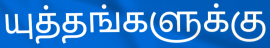
யுத்தங்களுக்கு